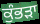
ਕੁੰਭੜਾ